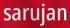
sarujan